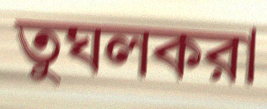
তুঘলকরা